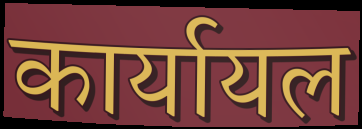
कार्यायल